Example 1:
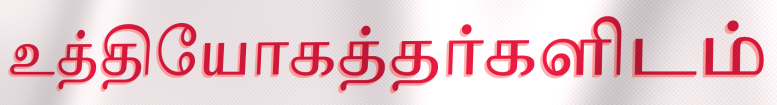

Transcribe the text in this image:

உத்தியோகத்தர்களிடம்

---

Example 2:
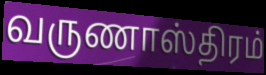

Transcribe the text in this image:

வருணாஸ்திரம்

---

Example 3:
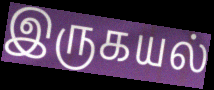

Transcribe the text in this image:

இருகயல்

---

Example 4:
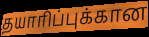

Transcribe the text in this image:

தயாரிப்புக்கான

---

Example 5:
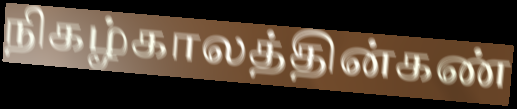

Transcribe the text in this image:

நிகழ்காலத்தின்கண்